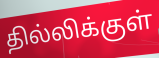
தில்லிக்குள்